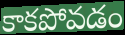
కాకపోవడం